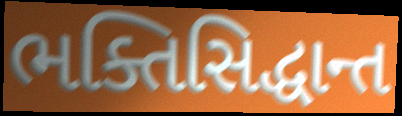
ભક્તિસિદ્ધાન્ત